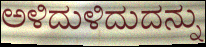
ಅಳಿದುಳಿದುದನ್ನು